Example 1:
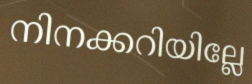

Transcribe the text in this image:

നിനക്കറിയില്ലേ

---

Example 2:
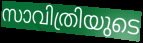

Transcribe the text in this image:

സാവിത്രിയുടെ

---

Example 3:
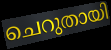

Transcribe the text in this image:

ചെറുതായി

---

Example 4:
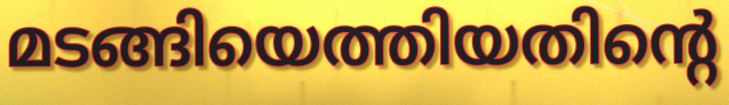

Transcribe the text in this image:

മടങ്ങിയെത്തിയതിന്റെ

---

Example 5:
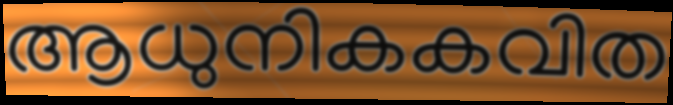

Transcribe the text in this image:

ആധുനികകവിത